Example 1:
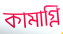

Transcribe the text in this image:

কামাগ্নি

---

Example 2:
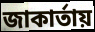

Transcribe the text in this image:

জাকার্তায়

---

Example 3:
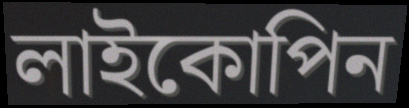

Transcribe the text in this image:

লাইকোপিন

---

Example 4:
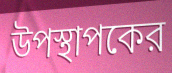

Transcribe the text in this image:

উপস্থাপকের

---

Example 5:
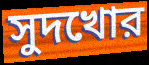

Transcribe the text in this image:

সুদখোর